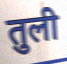
तुली